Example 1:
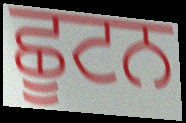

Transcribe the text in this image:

ਛੂਟਨ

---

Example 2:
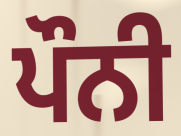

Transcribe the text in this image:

ਪੌਨੀ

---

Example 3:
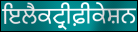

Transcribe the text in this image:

ਇਲੈਕਟ੍ਰੀਫ਼ੀਕੇਸ਼ਨ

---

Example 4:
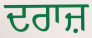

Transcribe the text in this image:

ਦਰਾਜ਼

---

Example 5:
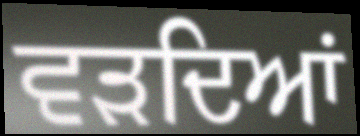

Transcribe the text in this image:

ਵੜਦਿਆਂ